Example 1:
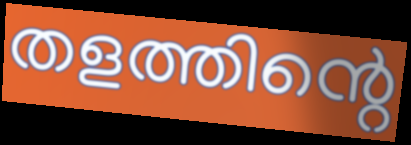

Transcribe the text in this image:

തളത്തിന്റെ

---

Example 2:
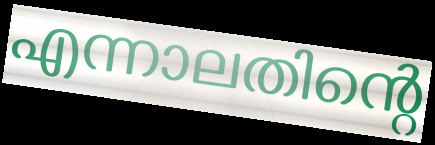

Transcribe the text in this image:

എന്നാലതിന്റെ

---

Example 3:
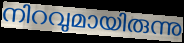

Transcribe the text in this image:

നിറവുമായിരുന്നു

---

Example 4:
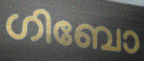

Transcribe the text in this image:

ഗിബോ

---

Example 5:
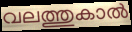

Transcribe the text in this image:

വലത്തുകാൽ